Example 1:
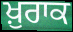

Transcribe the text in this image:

ਖ਼ੁਰਾਕ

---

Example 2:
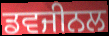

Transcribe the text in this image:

ਡਵਜੀਨਲ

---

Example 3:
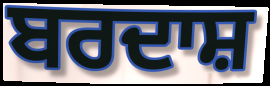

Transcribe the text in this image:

ਬਰਦਾਸ਼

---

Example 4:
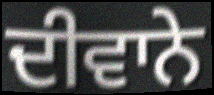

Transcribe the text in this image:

ਦੀਵਾਨੇ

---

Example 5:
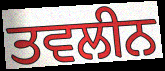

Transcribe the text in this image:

ਤਵਲੀਨ